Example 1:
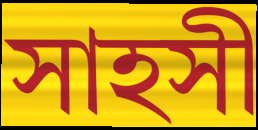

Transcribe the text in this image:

সাহসী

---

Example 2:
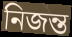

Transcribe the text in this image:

নিজন্ত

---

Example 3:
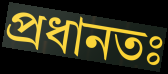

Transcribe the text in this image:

প্ৰধানতঃ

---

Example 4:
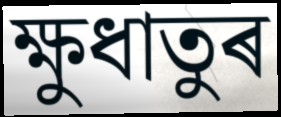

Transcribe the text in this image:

ক্ষুধাতুৰ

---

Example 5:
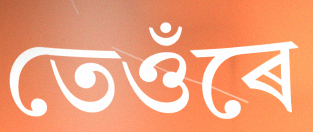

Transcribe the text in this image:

তেওঁৰে